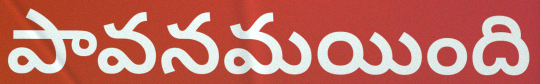
పావనమయింది